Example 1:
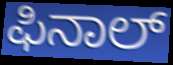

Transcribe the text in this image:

ಫಿನಾಲ್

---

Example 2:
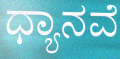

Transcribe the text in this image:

ಧ್ಯಾನವೆ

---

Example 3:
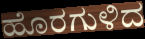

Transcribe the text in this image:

ಹೊರಗುಳಿದ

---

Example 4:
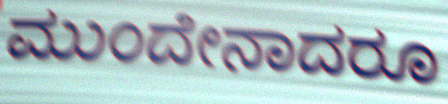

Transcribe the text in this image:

ಮುಂದೇನಾದರೂ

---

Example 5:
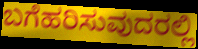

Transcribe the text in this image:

ಬಗೆಹರಿಸುವುದರಲ್ಲಿ